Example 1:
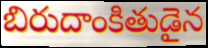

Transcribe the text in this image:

బిరుదాంకితుడైన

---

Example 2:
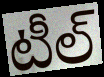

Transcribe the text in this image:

టీల్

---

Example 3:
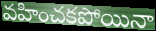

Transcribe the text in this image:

వహించకపోయినా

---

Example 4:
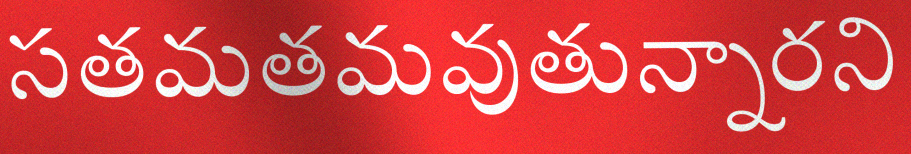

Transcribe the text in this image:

సతమతమవుతున్నారని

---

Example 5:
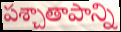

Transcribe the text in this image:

పశ్చాతాపాన్ని